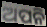
ଅପନି